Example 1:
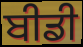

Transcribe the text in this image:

ਬੀਡੀ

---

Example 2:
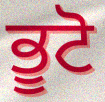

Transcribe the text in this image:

ਭੂਟੋ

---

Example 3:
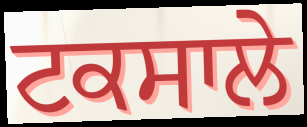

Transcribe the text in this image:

ਟਕਸਾਲੇ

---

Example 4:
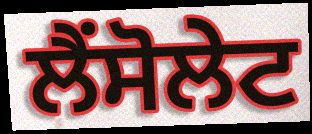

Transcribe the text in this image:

ਲੈਂਸੋਲੇਟ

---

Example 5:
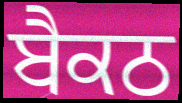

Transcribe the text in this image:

ਬੈਕਠ